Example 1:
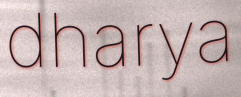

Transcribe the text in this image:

dharya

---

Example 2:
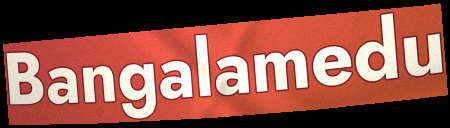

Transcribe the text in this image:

Bangalamedu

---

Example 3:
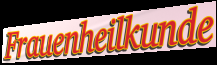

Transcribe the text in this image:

Frauenheilkunde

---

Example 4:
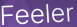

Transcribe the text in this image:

Feeler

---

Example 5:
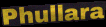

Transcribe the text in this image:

Phullara